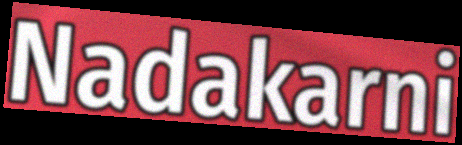
Nadakarni